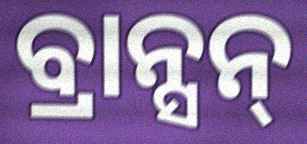
ବ୍ରାନ୍ସନ୍